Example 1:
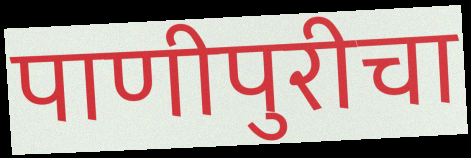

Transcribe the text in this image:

पाणीपुरीचा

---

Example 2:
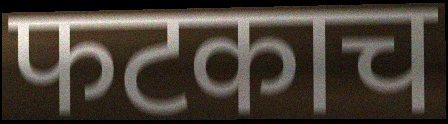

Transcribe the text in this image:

फटकाच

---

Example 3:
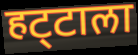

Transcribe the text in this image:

हट्‌टाला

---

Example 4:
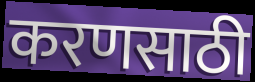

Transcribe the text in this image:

करणसाठी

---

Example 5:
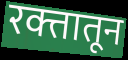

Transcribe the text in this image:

रक्तातून